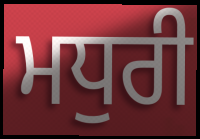
ਮਧੁਰੀ